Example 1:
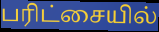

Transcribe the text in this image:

பரிட்சையில்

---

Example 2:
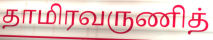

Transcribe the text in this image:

தாமிரவருணித்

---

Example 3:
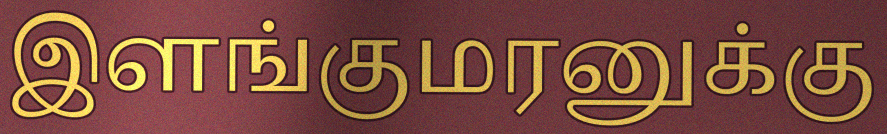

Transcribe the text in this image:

இளங்குமரனுக்கு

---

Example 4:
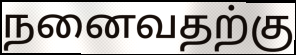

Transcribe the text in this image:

நனைவதற்கு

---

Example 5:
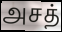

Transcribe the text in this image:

அசத்